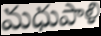
మధుపాళి